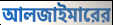
আলজাইমারের